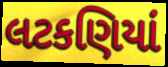
લટકણિયાં